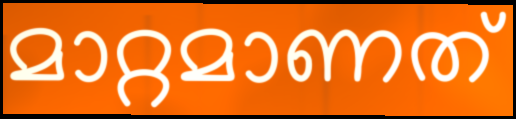
മാറ്റമാണത്